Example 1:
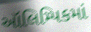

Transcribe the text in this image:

ઑલિમ્પિકમાં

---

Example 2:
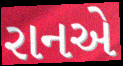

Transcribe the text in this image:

રાનએ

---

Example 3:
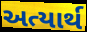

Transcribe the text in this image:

અત્યાર્થ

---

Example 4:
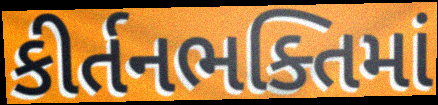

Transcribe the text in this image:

કીર્તનભક્તિમાં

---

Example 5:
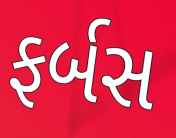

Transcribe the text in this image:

ફર્બસ